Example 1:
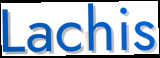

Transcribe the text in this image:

Lachis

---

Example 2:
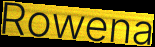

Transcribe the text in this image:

Rowena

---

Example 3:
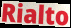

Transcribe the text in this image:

Rialto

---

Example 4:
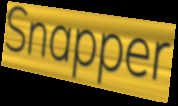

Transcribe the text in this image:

Snapper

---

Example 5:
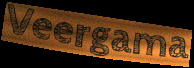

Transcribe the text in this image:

Veergama